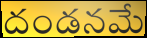
దండనమే